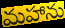
మహాను